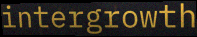
intergrowth